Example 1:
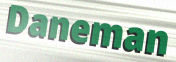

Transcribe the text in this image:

Daneman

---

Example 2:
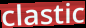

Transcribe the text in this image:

clastic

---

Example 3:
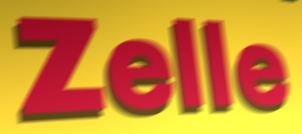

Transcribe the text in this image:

Zelle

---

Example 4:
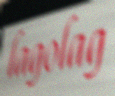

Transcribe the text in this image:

lagolag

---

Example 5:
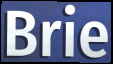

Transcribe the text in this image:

Brie